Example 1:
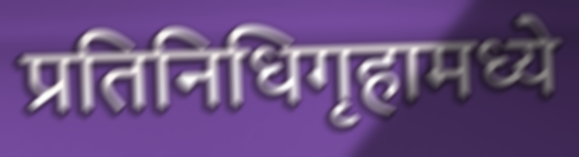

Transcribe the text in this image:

प्रतिनिधिगृहामध्ये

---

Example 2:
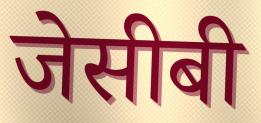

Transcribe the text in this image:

जेसीबी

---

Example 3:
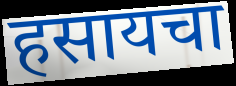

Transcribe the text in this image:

हसायचा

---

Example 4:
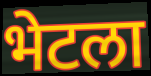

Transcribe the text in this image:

भेटला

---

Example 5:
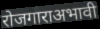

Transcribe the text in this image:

रोजगाराअभावी